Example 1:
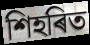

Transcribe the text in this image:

শিহৰিত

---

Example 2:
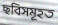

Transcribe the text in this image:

ছবিসমূহত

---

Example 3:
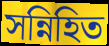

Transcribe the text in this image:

সন্নিহিত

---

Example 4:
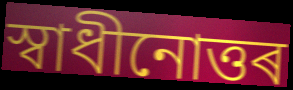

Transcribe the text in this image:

স্বাধীনোত্তৰ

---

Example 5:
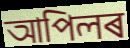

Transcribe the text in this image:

আপিলৰ